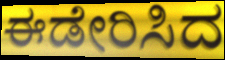
ಈಡೇರಿಸಿದ